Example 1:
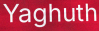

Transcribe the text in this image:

Yaghuth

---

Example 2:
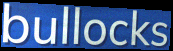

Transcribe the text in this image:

bullocks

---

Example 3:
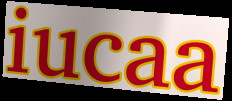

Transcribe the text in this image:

iucaa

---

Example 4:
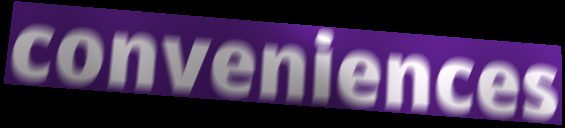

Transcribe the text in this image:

conveniences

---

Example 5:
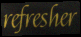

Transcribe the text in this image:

refresher